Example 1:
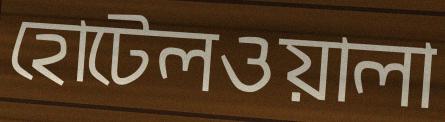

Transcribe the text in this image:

হোটেলওয়ালা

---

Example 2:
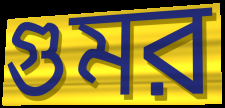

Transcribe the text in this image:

গুমর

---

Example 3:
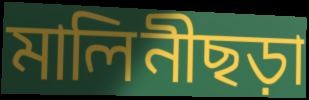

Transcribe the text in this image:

মালিনীছড়া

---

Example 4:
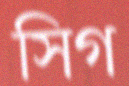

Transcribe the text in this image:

সিগ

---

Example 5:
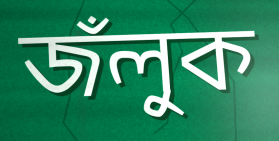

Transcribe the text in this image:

জঁলুক